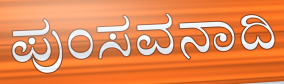
ಪುಂಸವನಾದಿ